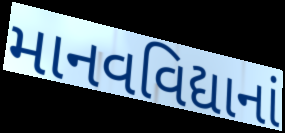
માનવવિદ્યાનાં